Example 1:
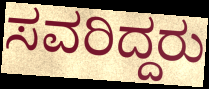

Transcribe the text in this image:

ಸವರಿದ್ದರು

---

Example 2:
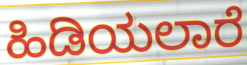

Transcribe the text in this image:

ಹಿಡಿಯಲಾರೆ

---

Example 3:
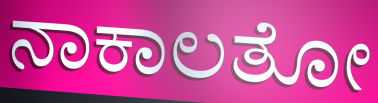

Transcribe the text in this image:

ನಾಕಾಲತೋ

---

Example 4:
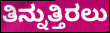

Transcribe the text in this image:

ತಿನ್ನುತ್ತಿರಲು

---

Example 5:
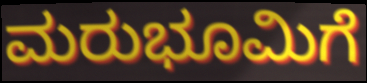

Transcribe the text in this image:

ಮರುಭೂಮಿಗೆ